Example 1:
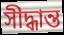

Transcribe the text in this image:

সীদ্ধান্ত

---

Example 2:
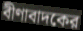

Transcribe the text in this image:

বীণাবাদকের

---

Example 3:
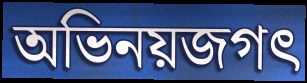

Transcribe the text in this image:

অভিনয়জগৎ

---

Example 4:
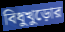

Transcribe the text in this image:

বিধুখুড়োর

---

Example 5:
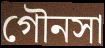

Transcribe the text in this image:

গৌনসা